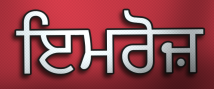
ਇਮਰੋਜ਼